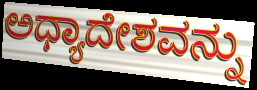
ಅಧ್ಯಾದೇಶವನ್ನು